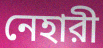
নেহারী